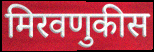
मिरवणुकीस